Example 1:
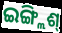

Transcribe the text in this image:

ଇଙ୍ଗ୍ଲିଶ୍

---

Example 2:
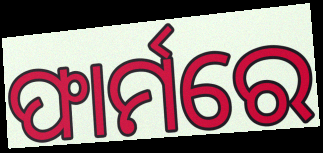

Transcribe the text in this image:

ଫାର୍ମରେ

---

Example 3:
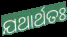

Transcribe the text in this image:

ଯଥାର୍ଥତଃ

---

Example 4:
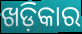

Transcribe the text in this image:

ଖଡ଼ିକାର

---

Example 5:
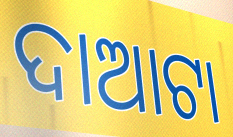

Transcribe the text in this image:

ଦାଆଟା